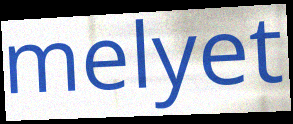
melyet